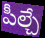
పీల్చే